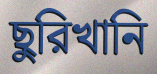
ছুরিখানি